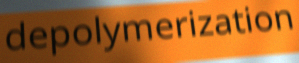
depolymerization